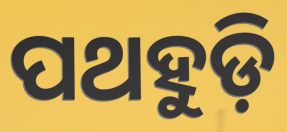
ପଥହୁଡ଼ି